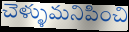
చెళ్ళుమనిపించి